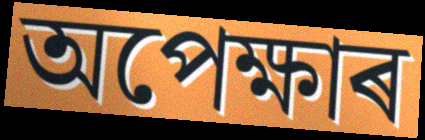
অপেক্ষাৰ